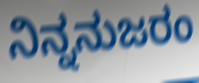
ನಿನ್ನನುಜರಂ